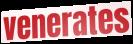
venerates